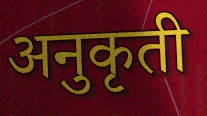
अनुकृती